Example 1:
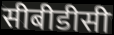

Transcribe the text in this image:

सीबीडीसी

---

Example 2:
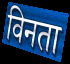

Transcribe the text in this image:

विनता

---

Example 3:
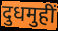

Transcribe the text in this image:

दुधमुहीं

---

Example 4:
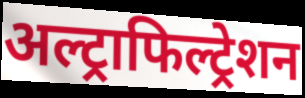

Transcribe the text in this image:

अल्ट्राफिल्ट्रेशन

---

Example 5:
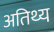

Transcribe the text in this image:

अतिथ्य